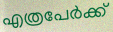
എത്രപേർക്ക്